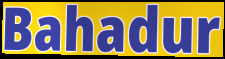
Bahadur